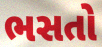
ભસતો